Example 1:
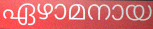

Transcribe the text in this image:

ഏഴാമനായ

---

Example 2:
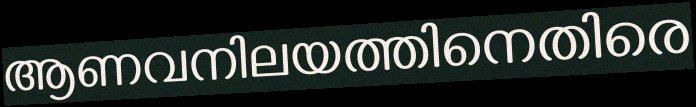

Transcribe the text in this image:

ആണവനിലയത്തിനെതിരെ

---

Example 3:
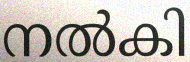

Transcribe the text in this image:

നൽകി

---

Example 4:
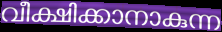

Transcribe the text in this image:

വീക്ഷിക്കാനാകുന്ന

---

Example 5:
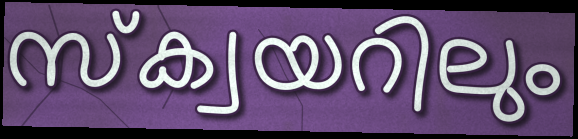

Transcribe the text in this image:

സ്ക്വയറിലും